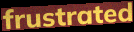
frustrated